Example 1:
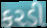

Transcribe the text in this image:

કરડી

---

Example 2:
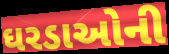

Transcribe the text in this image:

ઘરડાઓની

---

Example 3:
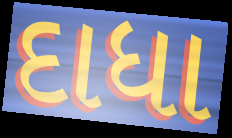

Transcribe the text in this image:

દાધા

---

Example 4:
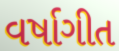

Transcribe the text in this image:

વર્ષાગીત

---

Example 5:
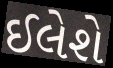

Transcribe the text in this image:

ઈલેશે